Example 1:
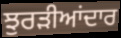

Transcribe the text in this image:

ਝੁਰੜੀਆਂਦਾਰ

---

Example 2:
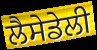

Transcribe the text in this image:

ਲੈਸੇਡੇਲੀ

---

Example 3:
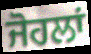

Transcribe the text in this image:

ਜੋਹਲਾਂ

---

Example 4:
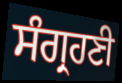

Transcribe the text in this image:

ਸੰਗ੍ਰਹਣੀ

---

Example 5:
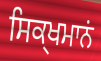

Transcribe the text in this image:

ਸਿਕ੍ਖਮਾਨਂ